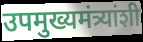
उपमुख्यमंत्र्यांशी